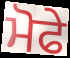
ਮੋਫੇ